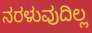
ನರಳುವುದಿಲ್ಲ